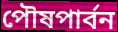
পৌষপার্বন